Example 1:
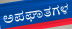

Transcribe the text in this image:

ಅಪಘಾತಗಳ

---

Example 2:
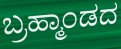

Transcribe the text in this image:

ಬ್ರಹ್ಮಾಂಡದ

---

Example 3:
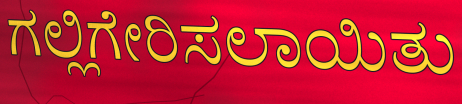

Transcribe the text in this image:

ಗಲ್ಲಿಗೇರಿಸಲಾಯಿತು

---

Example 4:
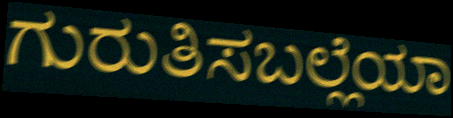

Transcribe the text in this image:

ಗುರುತಿಸಬಲ್ಲೆಯಾ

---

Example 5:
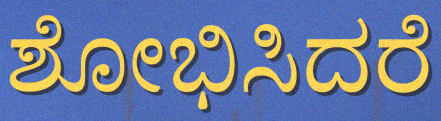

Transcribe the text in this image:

ಶೋಭಿಸಿದರೆ